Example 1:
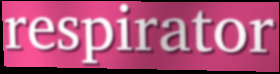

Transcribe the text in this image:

respirator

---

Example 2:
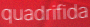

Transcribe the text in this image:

quadrifida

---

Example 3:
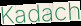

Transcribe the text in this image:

Kadach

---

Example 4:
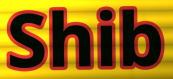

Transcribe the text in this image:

Shib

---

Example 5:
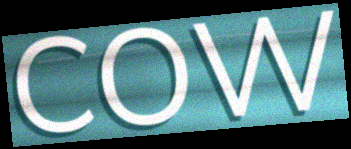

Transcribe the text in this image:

COW